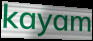
kayam